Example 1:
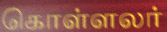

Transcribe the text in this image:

கொள்ளலர்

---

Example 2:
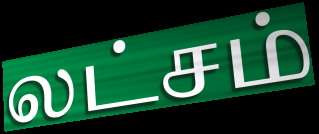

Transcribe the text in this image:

லட்சம்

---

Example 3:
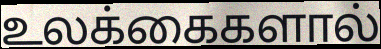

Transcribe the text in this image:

உலக்கைகளால்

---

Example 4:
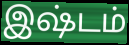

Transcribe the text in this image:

இஷ்டம்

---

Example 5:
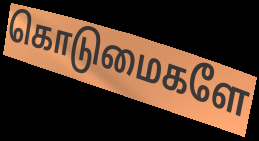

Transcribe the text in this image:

கொடுமைகளே